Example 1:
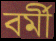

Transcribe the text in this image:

বৰ্মী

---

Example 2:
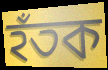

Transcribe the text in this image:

হঁতক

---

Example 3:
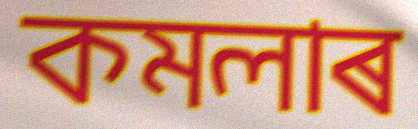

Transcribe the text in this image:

কমলাৰ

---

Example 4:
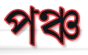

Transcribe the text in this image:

পঞ্চ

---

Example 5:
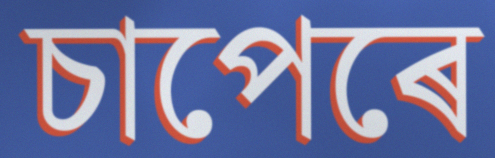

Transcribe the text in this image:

চাপেৰে